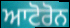
ਆਟੋਰੋਨ